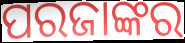
ପରଜାଙ୍କର